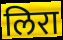
लिरा